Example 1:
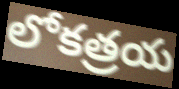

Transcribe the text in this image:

లోకత్రయ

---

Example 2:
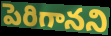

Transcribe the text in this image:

పెరిగానని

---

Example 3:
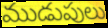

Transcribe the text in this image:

ముడుపులు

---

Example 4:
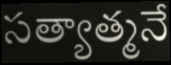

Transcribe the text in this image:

సత్యాత్మనే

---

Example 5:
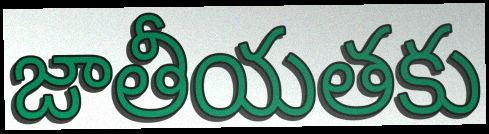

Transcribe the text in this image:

జాతీయతకు